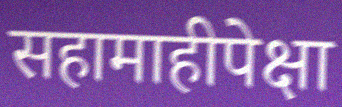
सहामाहीपेक्षा